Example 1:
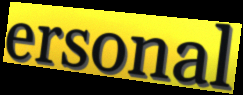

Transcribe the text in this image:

ersonal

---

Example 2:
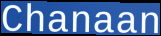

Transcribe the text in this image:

Chanaan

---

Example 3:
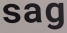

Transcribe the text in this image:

sag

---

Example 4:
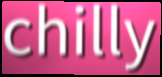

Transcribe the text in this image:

chilly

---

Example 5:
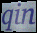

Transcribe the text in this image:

qin